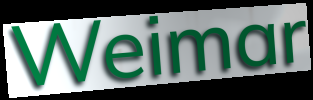
Weimar